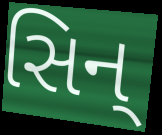
સિન્